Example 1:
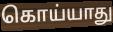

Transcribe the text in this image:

கொய்யாது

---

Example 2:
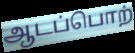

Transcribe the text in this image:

ஆடப்பொற்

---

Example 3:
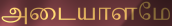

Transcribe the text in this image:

அடையாளமே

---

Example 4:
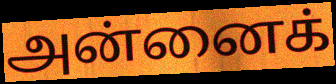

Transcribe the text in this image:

அன்னைக்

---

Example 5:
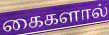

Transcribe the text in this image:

கைகளால்